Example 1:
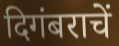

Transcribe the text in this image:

दिगंबराचें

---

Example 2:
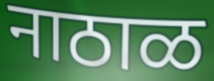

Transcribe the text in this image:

नाठाळ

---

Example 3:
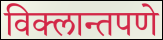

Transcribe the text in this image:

विक्लान्तपणे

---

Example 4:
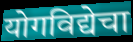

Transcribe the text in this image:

योगविद्येचा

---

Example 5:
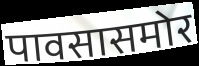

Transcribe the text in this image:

पावसासमोर